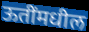
ऊतींमधील